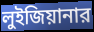
লুইজিয়ানার